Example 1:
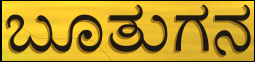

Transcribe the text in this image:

ಬೂತುಗನ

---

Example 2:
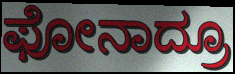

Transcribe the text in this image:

ಫೋನಾದ್ರೂ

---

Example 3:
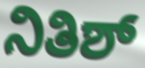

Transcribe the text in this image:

ನಿತಿಶ್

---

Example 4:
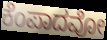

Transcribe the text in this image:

ಕೆಂಪಾದವೋ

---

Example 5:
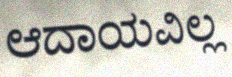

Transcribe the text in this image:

ಆದಾಯವಿಲ್ಲ